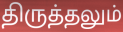
திருத்தலும்